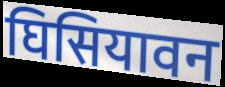
घिसियावन